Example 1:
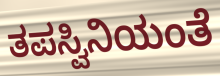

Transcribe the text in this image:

ತಪಸ್ವಿನಿಯಂತೆ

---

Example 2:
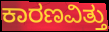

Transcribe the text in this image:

ಕಾರಣವಿತ್ತು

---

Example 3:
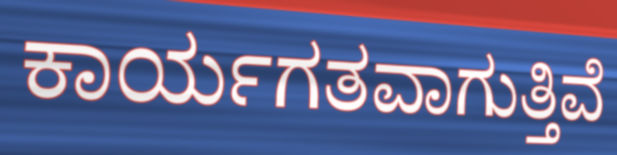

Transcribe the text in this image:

ಕಾರ್ಯಗತವಾಗುತ್ತಿವೆ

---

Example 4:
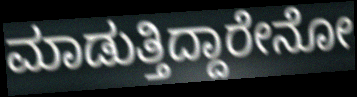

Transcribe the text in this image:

ಮಾಡುತ್ತಿದ್ದಾರೇನೋ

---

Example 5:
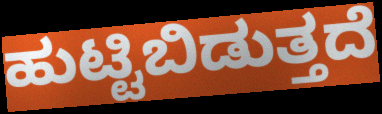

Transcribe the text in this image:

ಹುಟ್ಟಿಬಿಡುತ್ತದೆ